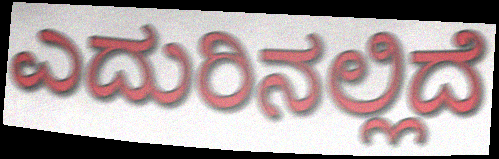
ಎದುರಿನಲ್ಲಿದೆ